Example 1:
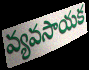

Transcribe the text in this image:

వ్యవసాయక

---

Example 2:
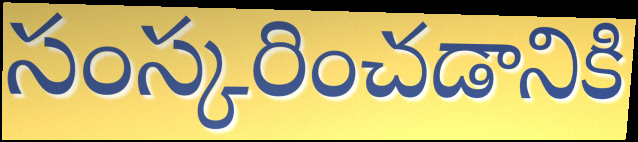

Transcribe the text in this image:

సంస్కరించడానికి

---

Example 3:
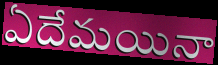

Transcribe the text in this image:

ఏదేమయినా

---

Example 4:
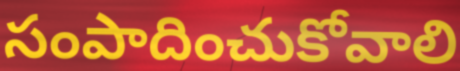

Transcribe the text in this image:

సంపాదించుకోవాలి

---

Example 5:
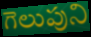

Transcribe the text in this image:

గెలుపుని